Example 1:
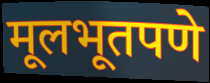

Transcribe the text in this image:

मूलभूतपणे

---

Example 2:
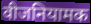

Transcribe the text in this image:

वीजनियामक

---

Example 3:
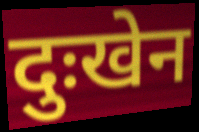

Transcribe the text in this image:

दुःखेन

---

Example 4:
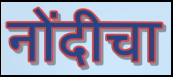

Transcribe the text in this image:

नोंदीचा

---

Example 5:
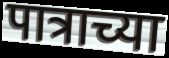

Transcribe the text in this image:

पात्राच्या